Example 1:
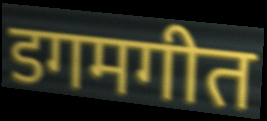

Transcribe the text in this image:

डगमगीत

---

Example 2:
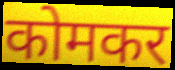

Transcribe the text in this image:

कोमकर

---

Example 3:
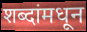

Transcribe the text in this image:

शब्दांमधून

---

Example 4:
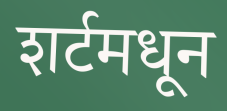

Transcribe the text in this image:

शर्टमधून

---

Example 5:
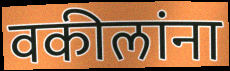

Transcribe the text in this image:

वकीलांना